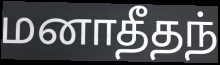
மனாதீதந்